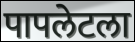
पापलेटला